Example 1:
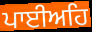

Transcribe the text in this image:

ਪਾਈਅਹਿ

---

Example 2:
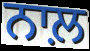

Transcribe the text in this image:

ਨਾਲ਼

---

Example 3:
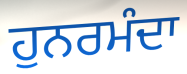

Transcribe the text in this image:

ਹੁਨਰਮੰਦਾ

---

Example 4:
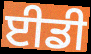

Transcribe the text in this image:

ਈਡੀ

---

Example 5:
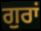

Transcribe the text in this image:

ਗੁਰਾਂ